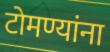
टोमण्यांना